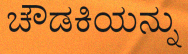
ಚೌಡಕಿಯನ್ನು